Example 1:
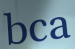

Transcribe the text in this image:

bca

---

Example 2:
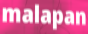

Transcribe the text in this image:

malapan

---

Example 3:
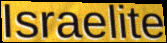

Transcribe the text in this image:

Israelite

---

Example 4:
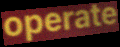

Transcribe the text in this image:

operate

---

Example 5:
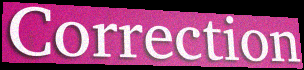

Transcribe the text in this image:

Correction